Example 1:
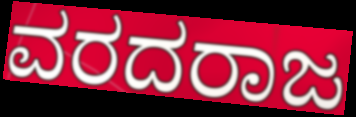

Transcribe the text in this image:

ವರದರಾಜ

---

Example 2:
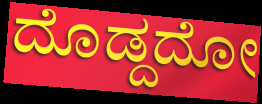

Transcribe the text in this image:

ದೊಡ್ದದೋ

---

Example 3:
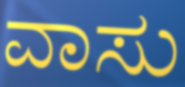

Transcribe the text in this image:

ವಾಸು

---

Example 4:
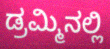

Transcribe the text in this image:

ಡ್ರಮ್ಮಿನಲ್ಲಿ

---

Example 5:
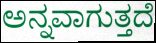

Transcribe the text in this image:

ಅನ್ನವಾಗುತ್ತದೆ